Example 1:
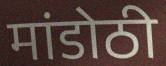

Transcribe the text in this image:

मांडोठी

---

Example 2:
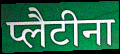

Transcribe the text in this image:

प्लैटीना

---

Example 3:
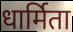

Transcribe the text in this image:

धार्मिता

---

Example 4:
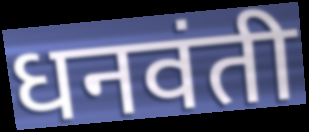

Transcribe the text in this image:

धनवंती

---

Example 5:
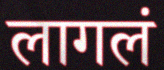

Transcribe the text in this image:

लागलं